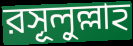
রসূলুল্লাহ